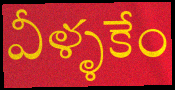
వీళ్ళకేం